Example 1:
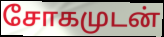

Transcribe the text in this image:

சோகமுடன்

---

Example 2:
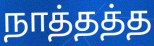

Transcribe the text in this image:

நாத்தத்த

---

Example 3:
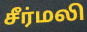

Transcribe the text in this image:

சீர்மலி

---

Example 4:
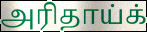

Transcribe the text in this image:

அரிதாய்க்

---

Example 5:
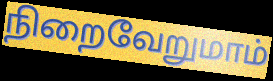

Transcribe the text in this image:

நிறைவேறுமாம்